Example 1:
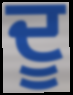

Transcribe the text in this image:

ਦੂ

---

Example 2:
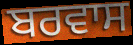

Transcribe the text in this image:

ਬਰਵਾਸ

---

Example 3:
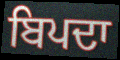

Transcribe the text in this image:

ਬਿਪਦਾ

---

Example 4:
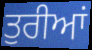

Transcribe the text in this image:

ਤੁਰੀਆਂ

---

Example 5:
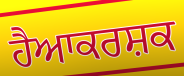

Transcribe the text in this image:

ਹੈਆਕਰਸ਼ਕ